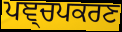
ਪਞ੍ਚਪਕਰਣ